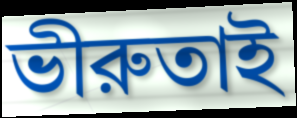
ভীরুতাই